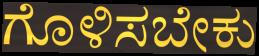
ಗೊಳಿಸಬೇಕು